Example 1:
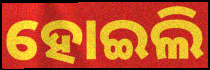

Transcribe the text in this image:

ହୋଇଲି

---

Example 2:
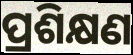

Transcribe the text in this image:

ପ୍ରଶିକ୍ଷଣ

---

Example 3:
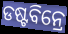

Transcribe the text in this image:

ଡଷ୍ଟବିନ୍ରେ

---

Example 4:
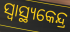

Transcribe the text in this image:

ସ୍ୱାସ୍ଥ୍ୟକେନ୍ଦ୍ର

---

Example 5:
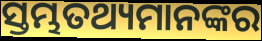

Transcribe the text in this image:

ସ୍ତମ୍ଭତଥ୍ୟମାନଙ୍କର